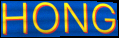
HONG